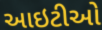
આઇટીઓ